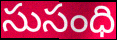
సుసంధి